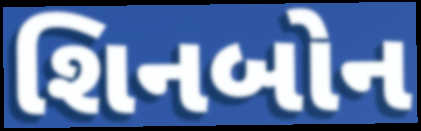
શિનબોન